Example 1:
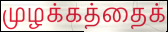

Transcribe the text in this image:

முழக்கத்தைக்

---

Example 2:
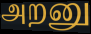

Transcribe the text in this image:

அறனு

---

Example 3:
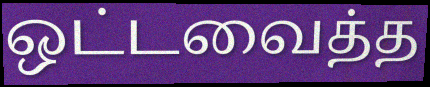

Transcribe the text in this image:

ஒட்டவைத்த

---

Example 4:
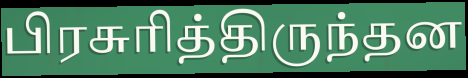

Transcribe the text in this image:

பிரசுரித்திருந்தன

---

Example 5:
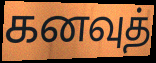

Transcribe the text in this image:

கனவுத்